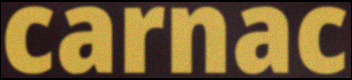
carnac